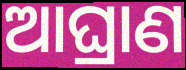
ଆଘ୍ରାଣ